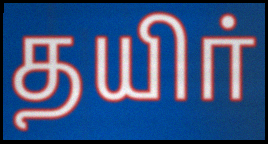
தயிர்